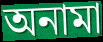
অনামা